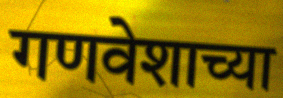
गणवेशाच्या